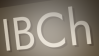
IBCh